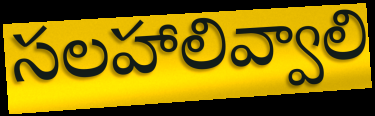
సలహాలివ్వాలి